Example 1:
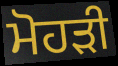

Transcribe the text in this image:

ਮੋਹੜੀ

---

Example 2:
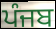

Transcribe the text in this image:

ਪੰਜਬ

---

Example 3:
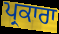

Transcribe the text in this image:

ਪ੍ਰਕਾਰਾ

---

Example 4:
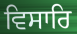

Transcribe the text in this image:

ਵਿਸਾਰਿ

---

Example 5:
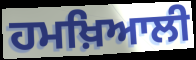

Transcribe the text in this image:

ਹਮਖ਼ਿਆਲੀ